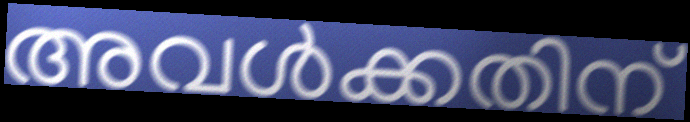
അവൾക്കതിന്